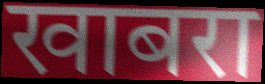
खाबरा